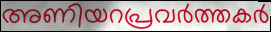
അണിയറപ്രവർത്തകർ